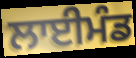
ਲਾਈਮੰਡ